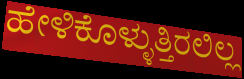
ಹೇಳಿಕೊಳ್ಳುತ್ತಿರಲಿಲ್ಲ